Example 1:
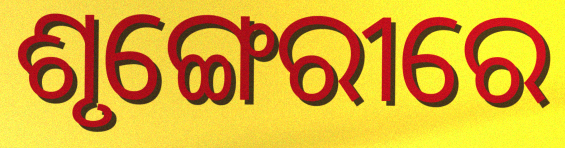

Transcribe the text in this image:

ଶୃଙ୍ଗେରୀରେ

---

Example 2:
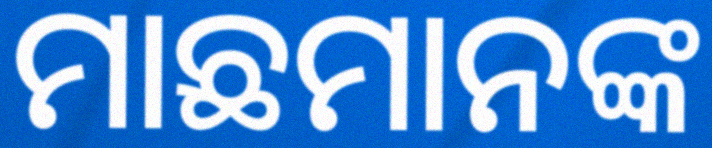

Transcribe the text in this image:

ମାଛମାନଙ୍କ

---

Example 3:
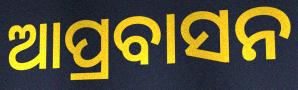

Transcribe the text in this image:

ଆପ୍ରବାସନ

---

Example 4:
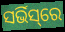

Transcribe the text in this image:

ସର୍ଭିସ୍‌ରେ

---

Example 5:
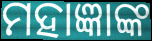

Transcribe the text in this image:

ମହାଜ୍ଞାଙ୍କ